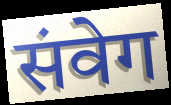
संवेग